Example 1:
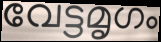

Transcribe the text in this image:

വേട്ടമൃഗം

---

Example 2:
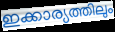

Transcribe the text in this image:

ഇക്കാര്യത്തിലും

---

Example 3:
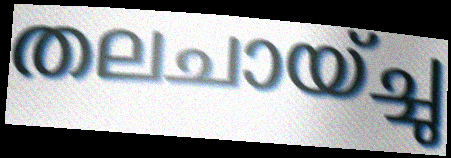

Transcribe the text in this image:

തലചായ്ച്ചു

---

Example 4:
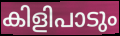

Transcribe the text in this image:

കിളിപാടും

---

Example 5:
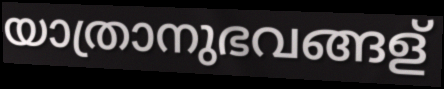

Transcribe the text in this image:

യാത്രാനുഭവങ്ങള്